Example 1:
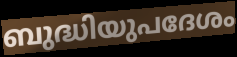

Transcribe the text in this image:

ബുദ്ധിയുപദേശം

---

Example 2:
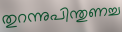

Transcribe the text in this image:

തുറന്നുപിന്തുണച്ച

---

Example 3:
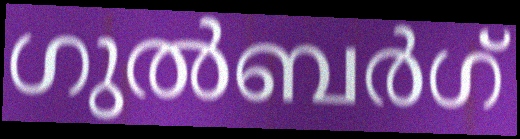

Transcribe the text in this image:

ഗുൽബർഗ്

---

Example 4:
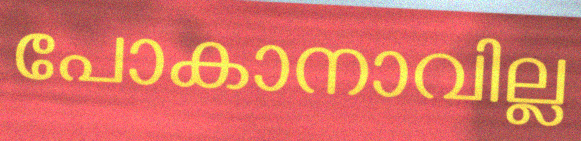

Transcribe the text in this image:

പോകാനാവില്ല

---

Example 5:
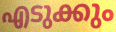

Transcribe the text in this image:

എടുക്കും